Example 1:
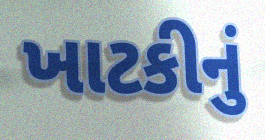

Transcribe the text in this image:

ખાટકીનું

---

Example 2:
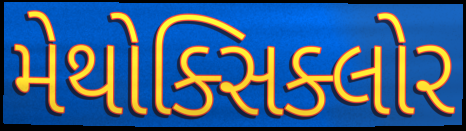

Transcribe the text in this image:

મેથોક્સિક્લોર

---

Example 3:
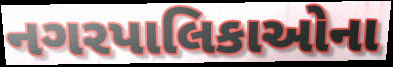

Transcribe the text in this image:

નગરપાલિકાઓના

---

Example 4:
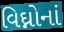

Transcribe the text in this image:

વિઘ્નોનાં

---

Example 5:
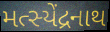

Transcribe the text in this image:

મત્સ્યેંદ્રનાથ